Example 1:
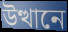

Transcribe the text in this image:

উত্থানে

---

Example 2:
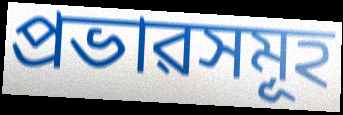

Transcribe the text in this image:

প্ৰভাৱসমূহ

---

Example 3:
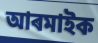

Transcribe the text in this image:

আৰমাইক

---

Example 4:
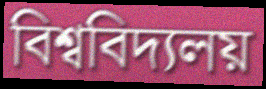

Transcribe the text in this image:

বিশ্ববিদ্যলয়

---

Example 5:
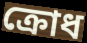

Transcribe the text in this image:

ক্ৰোধ